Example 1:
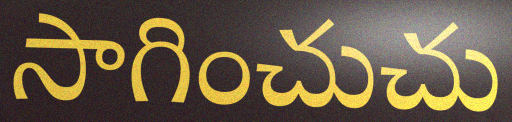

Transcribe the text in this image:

సాగించుచు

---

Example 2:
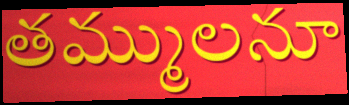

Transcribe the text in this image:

తమ్ములనూ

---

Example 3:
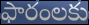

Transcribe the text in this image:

ఫారంలకు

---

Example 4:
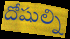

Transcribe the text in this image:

దోషుల్ని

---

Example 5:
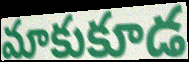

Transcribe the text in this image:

మాకుకూడ